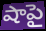
షాపై